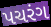
પચરંગ